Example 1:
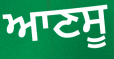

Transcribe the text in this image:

ਆਣਸੂ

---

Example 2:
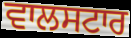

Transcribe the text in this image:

ਵਾਲਸਟਾਰ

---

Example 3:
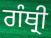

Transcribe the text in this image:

ਗੰਥ੍ਰੀ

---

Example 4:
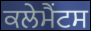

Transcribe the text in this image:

ਕਲੇਮੈਂਟਸ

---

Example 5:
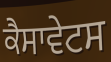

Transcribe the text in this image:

ਕੈਸਾਵੇਟਸ